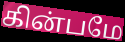
கின்பமே